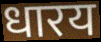
धारय